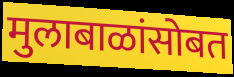
मुलाबाळांसोबत